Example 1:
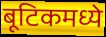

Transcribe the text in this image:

बूटिकमध्ये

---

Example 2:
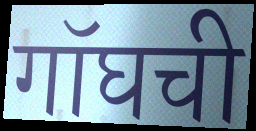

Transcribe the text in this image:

गॉघची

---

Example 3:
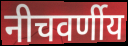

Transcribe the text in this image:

नीचवर्णीय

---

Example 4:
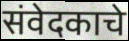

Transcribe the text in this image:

संवेदकाचे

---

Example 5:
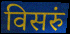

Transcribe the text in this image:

विसरुं